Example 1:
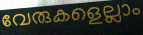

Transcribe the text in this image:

വേരുകളെല്ലാം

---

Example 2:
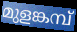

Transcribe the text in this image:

മുളങ്കമ്പ്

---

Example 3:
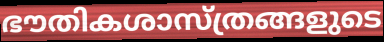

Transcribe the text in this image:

ഭൗതികശാസ്ത്രങ്ങളുടെ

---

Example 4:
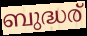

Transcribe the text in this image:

ബുദ്ധര്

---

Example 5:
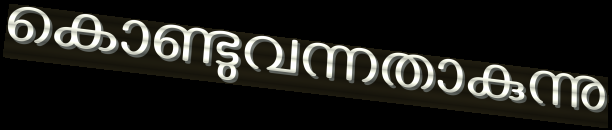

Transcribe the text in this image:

കൊണ്ടുവന്നതാകുന്നു